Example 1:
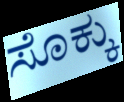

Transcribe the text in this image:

ಸೊಕ್ಕು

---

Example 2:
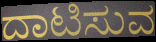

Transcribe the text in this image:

ದಾಟಿಸುವ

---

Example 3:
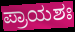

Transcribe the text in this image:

ಪ್ರಾಯಶಃ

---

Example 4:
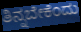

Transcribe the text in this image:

ತಿನ್ನಬೇಕೆಂದು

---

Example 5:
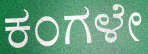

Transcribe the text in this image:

ಕಂಗಳೇ